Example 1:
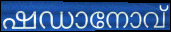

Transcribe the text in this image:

ഷഡാനോവ്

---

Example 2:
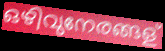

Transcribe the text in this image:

ഒഴിവുനേരങ്ങള്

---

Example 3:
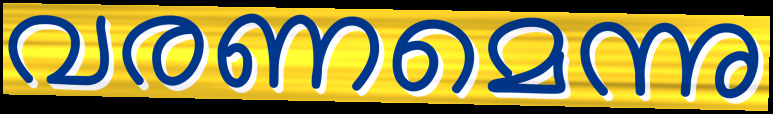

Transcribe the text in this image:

വരണമെന്നു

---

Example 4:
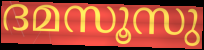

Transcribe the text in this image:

ദമസൂസു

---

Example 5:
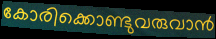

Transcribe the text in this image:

കോരിക്കൊണ്ടുവരുവാൻ